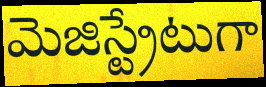
మెజిస్ట్రేటుగా